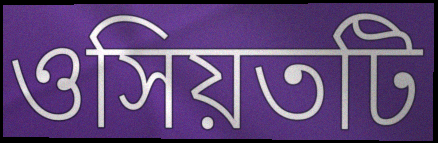
ওসিয়তটি